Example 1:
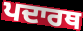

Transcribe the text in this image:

ਪਦਾਰਥ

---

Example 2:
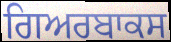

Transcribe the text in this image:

ਗਿਅਰਬਾਕਸ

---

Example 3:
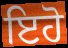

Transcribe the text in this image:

ਇਹੋ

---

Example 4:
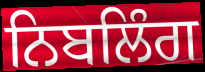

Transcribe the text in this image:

ਨਿਬਲਿੰਗ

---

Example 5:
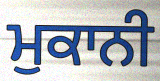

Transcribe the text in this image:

ਮੁਕਾਨੀ